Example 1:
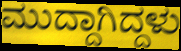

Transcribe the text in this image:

ಮುದ್ದಾಗಿದ್ದಳು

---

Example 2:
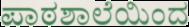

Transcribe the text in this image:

ಪಾಠಶಾಲೆಯಿಂದ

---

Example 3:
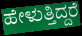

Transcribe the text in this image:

ಹೇಳುತ್ತಿದ್ದರೆ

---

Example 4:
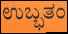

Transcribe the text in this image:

ಉಬ್ಭತಂ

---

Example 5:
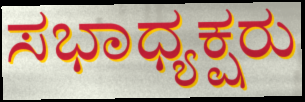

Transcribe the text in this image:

ಸಭಾಧ್ಯಕ್ಷರು